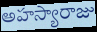
అహస్యారాజు